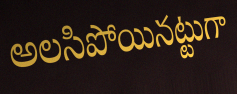
అలసిపోయినట్టుగా